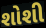
શોશી